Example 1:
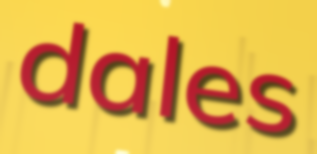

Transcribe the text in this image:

dales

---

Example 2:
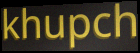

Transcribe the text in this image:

khupch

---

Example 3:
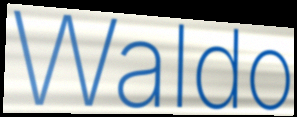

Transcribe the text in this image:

Waldo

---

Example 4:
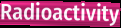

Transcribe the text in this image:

Radioactivity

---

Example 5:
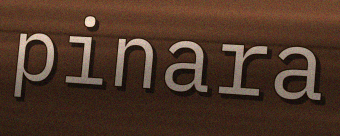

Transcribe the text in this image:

pinara